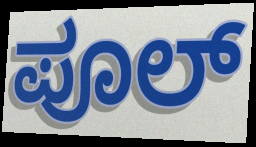
ಪೂಲ್